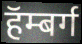
हॅम्बर्ग